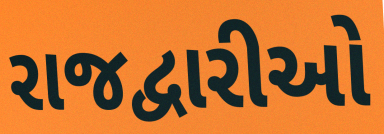
રાજદ્વારીઓ